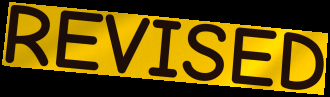
REVISED